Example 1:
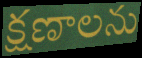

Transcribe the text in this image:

క్షణాలను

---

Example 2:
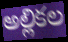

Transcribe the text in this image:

అల్లికల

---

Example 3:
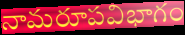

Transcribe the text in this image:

నామరూపవిభాగం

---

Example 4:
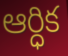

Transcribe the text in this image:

ఆర్ధిక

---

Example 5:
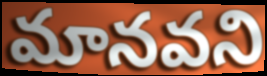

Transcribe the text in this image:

మానవని